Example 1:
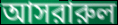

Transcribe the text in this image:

আসরারুল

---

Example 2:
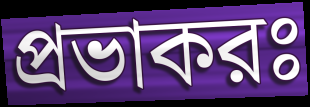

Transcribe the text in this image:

প্রভাকরঃ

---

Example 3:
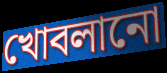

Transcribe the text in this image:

খোবলানো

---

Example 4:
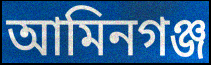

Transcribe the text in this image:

আমিনগঞ্জ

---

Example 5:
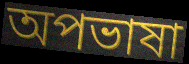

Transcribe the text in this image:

অপভাষা